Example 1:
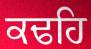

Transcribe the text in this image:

ਕਢਹਿ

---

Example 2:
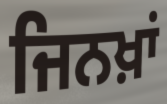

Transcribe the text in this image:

ਜਿਨਖ਼ਾਂ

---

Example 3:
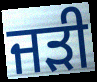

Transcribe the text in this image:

ਜੜੀ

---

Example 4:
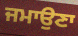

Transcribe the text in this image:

ਜਮਾਉਣਾ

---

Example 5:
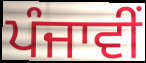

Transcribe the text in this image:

ਪੰਜਾਵੀਂ